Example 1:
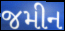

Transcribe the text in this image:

જમીન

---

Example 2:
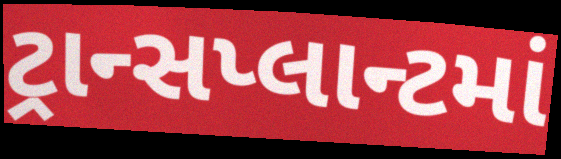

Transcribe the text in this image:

ટ્રાન્સપ્લાન્ટમાં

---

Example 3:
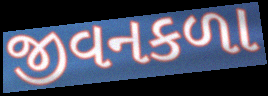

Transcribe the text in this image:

જીવનકળા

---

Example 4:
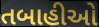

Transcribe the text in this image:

તબાહીઓ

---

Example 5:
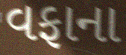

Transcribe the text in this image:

વફાના